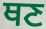
ਥਣ